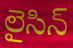
లైసిన్